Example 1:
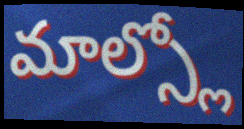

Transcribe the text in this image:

మాల్స్లో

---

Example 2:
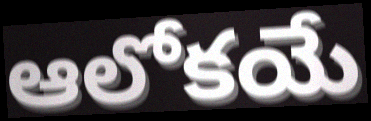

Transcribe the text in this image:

ఆలోకయే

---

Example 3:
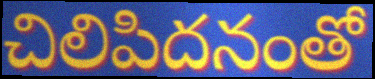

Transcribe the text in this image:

చిలిపిదనంతో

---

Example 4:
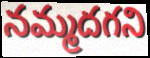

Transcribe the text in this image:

నమ్మదగని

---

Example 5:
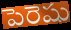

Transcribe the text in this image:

పెరెషు